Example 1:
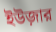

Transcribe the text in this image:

ইউজ়ার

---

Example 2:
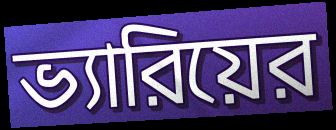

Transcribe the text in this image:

ভ্যারিয়ের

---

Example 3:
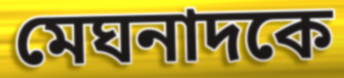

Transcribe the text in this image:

মেঘনাদকে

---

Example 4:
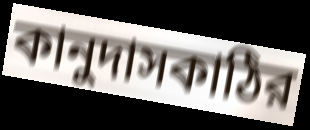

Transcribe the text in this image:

কানুদাসকাঠির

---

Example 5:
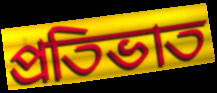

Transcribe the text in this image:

প্রতিভাত